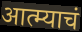
आत्म्याचं